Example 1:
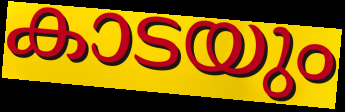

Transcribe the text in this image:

കാടയും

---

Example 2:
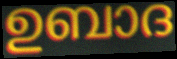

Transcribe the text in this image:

ഉബാദ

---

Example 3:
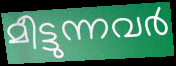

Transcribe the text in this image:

മീട്ടുന്നവർ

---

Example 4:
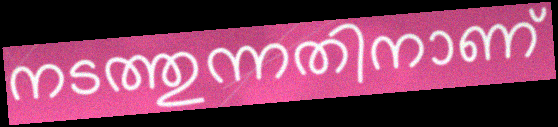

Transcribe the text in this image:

നടത്തുന്നതിനാണ്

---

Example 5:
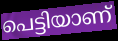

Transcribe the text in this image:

പെട്ടിയാണ്